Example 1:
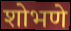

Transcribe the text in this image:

शोभणे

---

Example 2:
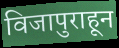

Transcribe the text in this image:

विजापुराहून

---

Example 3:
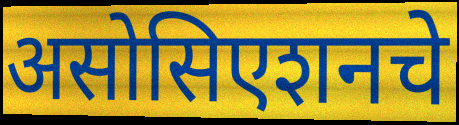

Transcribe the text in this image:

असोसिएशनचे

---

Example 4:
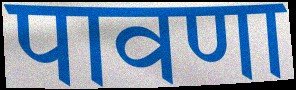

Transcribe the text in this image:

पावणा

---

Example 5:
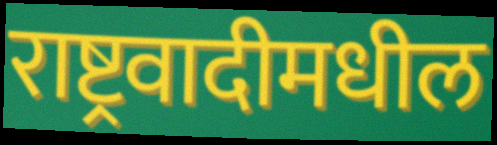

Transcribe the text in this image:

राष्ट्रवादीमधील